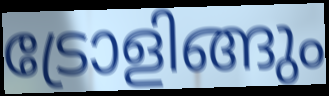
ട്രോളിങ്ങും